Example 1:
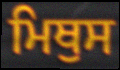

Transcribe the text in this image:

ਮਿਥੁਸ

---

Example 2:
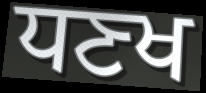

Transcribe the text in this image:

ਧਣਖ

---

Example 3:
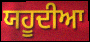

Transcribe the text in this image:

ਯਹੂਦੀਆ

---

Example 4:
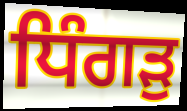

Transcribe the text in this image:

ਧਿੰਗੜੁ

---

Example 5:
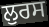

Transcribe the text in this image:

ਲੁਰਸ